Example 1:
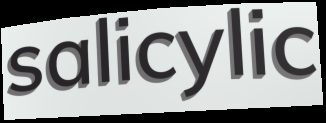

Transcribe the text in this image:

salicylic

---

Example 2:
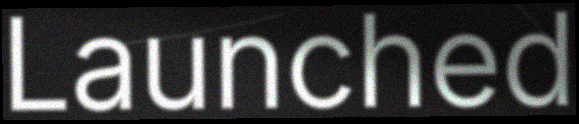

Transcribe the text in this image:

Launched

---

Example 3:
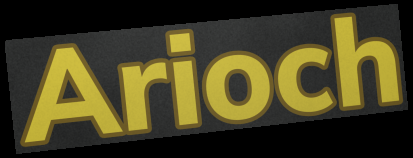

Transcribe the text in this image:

Arioch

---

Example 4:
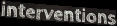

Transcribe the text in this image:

interventions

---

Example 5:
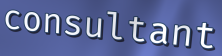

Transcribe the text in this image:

consultant